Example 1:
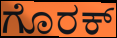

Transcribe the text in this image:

ಗೊರಕ್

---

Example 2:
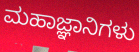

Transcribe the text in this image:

ಮಹಾಜ್ಞಾನಿಗಳು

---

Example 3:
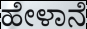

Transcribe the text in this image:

ಹೇಳಾನೆ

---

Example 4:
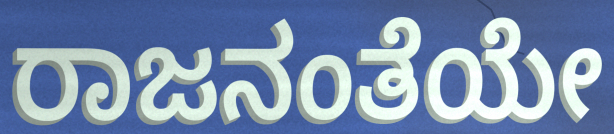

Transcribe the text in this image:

ರಾಜನಂತೆಯೇ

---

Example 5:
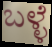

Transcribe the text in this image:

ಬಳ್ಳೆ